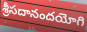
శ్రీసదానందయోగి